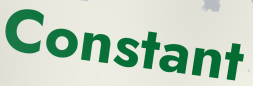
Constant